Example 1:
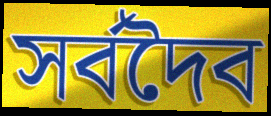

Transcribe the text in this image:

সর্বদৈব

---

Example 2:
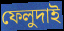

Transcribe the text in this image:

ফেলুদাই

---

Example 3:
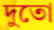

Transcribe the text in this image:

দুতো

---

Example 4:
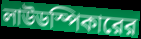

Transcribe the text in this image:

লাউডস্পিকারের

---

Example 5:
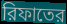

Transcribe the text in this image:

রিফাতের